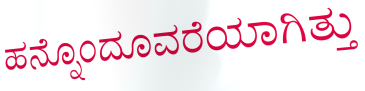
ಹನ್ನೊಂದೂವರೆಯಾಗಿತ್ತು